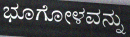
ಭೂಗೋಳವನ್ನು